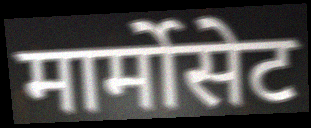
मार्मोसेट